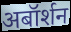
अबॉर्शन